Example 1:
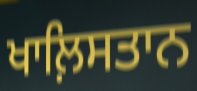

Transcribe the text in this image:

ਖਾਲ਼ਿਸਤਾਨ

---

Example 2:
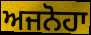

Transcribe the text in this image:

ਅਜਨੋਹਾ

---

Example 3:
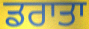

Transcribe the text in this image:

ਡਰਾਤਾ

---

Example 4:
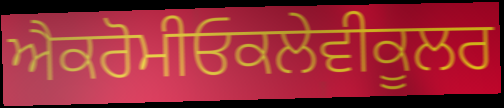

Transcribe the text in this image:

ਐਕਰੋਮੀਓਕਲੇਵੀਕੂਲਰ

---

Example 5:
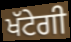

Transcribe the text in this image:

ਖੱਟੇਗੀ